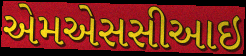
એમએસસીઆઇ